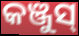
କଞ୍ଜୁସ୍